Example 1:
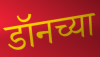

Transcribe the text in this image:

डॉनच्या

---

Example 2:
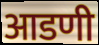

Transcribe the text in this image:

आडणी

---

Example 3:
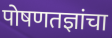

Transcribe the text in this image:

पोषणतज्ञांचा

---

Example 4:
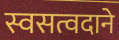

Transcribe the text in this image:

स्वसत्वदाने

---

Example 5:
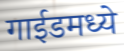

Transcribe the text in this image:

गाईडमध्ये